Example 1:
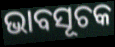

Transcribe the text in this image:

ଭାବସୂଚକ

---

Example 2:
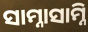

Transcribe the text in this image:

ସାମ୍ନାସାମ୍ନି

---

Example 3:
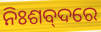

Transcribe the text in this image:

ନିଃଶବ୍‌ଦରେ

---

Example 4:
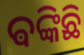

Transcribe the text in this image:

ଵଙ୍କିଛି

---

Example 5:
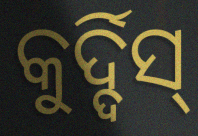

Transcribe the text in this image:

କୁର୍ଦ୍ଦିସ୍